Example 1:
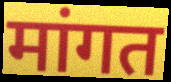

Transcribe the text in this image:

मांगत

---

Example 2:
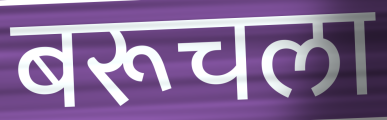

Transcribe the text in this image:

बरूचला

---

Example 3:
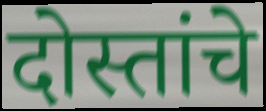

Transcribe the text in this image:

दोस्तांचे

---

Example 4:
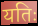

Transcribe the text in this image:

यतिः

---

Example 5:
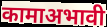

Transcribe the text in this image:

कामाअभावी